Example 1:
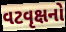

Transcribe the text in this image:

વટવૃક્ષનો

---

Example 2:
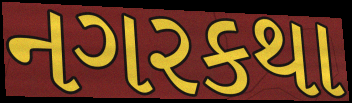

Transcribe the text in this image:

નગરકથા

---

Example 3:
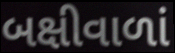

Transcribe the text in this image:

બક્ષીવાળાં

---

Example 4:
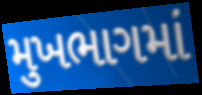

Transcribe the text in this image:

મુખભાગમાં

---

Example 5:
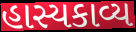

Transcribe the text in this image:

હાસ્યકાવ્ય